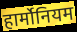
हार्मोनियम